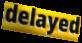
delayed